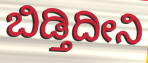
ಬಿಡ್ತಿದೀನಿ